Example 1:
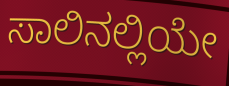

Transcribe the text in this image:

ಸಾಲಿನಲ್ಲಿಯೇ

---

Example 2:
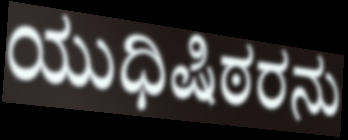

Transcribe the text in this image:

ಯುಧಿಷಿಠರನು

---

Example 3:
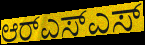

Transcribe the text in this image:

ಆರ್‌ಎಸ್ಎಸ್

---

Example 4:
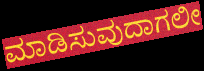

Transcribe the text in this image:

ಮಾಡಿಸುವುದಾಗಲೀ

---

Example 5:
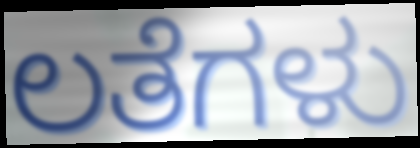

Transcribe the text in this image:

ಲತೆಗಳು